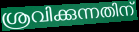
ശ്രവിക്കുന്നതിന്